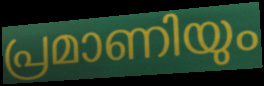
പ്രമാണിയും